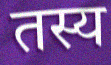
तस्य